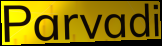
Parvadi